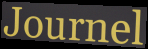
Journel